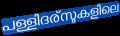
പള്ളിദര്സുകളിലെ